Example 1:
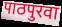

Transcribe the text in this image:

पाठपुरवा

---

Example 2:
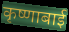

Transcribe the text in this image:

कृष्णाबाई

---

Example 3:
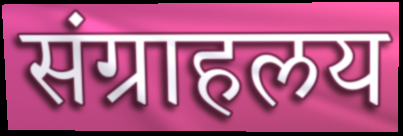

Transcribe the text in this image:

संग्राहलय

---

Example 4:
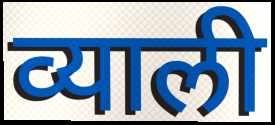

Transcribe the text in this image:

व्याली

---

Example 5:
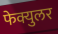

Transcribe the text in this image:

फेक्युलर